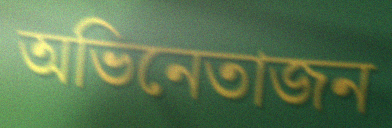
অভিনেতাজন